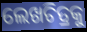
ଲେଖଚିତ୍ରକୁ